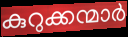
കുറുക്കന്മാർ